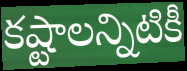
కష్టాలన్నిటికీ